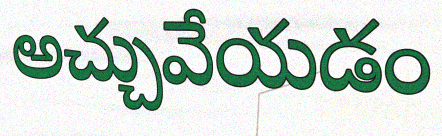
అచ్చువేయడం